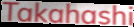
Takahashi